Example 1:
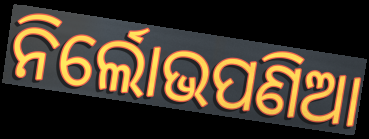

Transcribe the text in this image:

ନିର୍ଲୋଭପଣିଆ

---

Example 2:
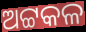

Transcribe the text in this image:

ଅଟ୍ଟକଳ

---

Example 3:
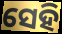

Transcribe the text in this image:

ସେହି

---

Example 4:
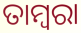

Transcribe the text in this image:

ତାମ୍ବରା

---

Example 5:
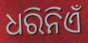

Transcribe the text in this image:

ଧରିନିଏଁ